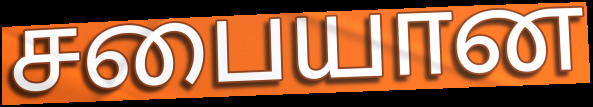
சபையான